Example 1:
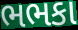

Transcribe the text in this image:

ભભકા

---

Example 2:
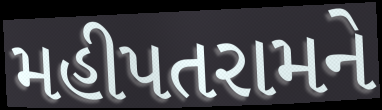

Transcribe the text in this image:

મહીપતરામને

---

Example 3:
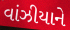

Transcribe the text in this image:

વાંઝીયાને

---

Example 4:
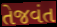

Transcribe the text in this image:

તેજવંત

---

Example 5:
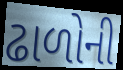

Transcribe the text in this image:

ઢાળોની